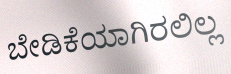
ಬೇಡಿಕೆಯಾಗಿರಲಿಲ್ಲ